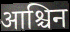
आश्चिन